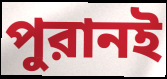
পুরানই